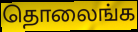
தொலைங்க